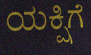
ಯಕ್ಷಿಗೆ